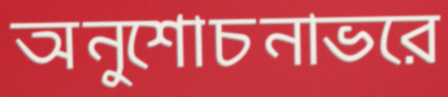
অনুশোচনাভরে